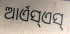
ଆର୍ଏସ୍ଏସ୍